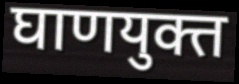
घाणयुक्त